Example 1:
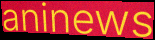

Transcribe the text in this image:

aninews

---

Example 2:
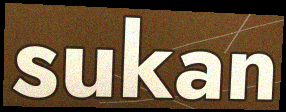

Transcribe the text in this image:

sukan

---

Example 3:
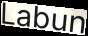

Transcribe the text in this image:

Labun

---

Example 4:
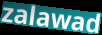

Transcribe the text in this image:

zalawad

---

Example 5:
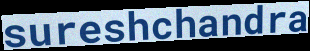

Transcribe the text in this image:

sureshchandra